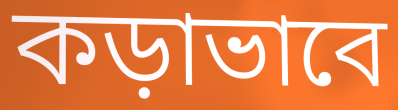
কড়াভাবে